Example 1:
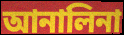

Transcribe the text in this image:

আনালিনা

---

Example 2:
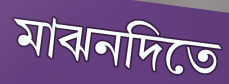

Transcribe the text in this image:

মাঝনদিতে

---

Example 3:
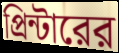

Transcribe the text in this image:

প্রিন্টারের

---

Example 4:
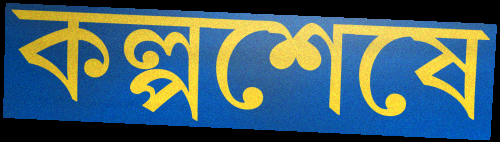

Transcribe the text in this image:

কল্পশেষে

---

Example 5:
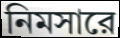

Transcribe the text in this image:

নিমসারে